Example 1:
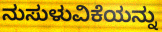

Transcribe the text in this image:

ನುಸುಳುವಿಕೆಯನ್ನು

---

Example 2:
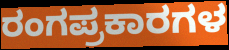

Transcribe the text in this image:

ರಂಗಪ್ರಕಾರಗಳ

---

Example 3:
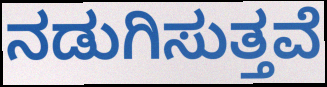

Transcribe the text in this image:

ನಡುಗಿಸುತ್ತವೆ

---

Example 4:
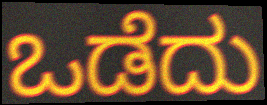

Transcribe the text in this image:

ಒಡೆದು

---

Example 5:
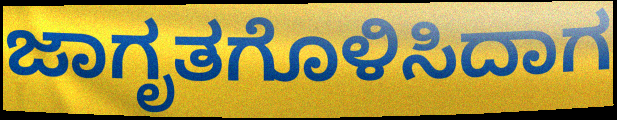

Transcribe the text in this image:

ಜಾಗೃತಗೊಳಿಸಿದಾಗ